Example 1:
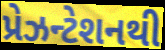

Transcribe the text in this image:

પ્રેઝન્ટેશનથી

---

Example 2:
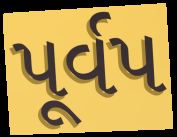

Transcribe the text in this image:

પૂર્વપ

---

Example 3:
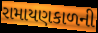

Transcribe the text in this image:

રામાયણકાળની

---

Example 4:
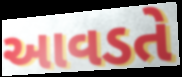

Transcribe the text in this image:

આવડતે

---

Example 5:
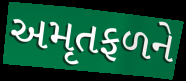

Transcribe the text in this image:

અમૃતફળને